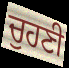
ਚੁਹਣੀ